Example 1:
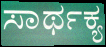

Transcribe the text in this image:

ಸಾರ್ಥಕ್ಯ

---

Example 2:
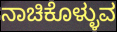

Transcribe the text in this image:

ನಾಚಿಕೊಳ್ಳುವ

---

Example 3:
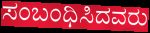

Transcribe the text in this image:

ಸಂಬಂಧಿಸಿದವರು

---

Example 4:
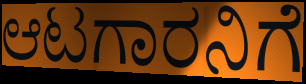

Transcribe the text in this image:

ಆಟಗಾರನಿಗೆ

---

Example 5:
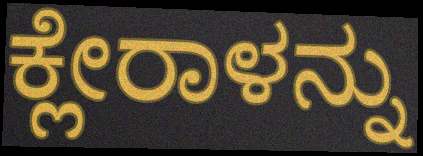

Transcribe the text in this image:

ಕ್ಲೇರಾಳನ್ನು